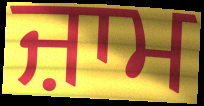
ਜ਼ਾਮ